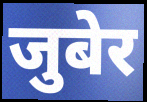
जुबेर